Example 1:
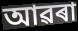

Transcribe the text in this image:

আৱৰা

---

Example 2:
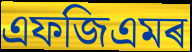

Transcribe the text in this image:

এফজিএমৰ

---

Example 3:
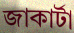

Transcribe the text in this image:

জাকাৰ্টা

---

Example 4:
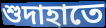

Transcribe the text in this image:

শুদাহাতে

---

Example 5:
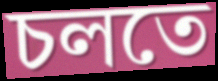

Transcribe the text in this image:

চলতে